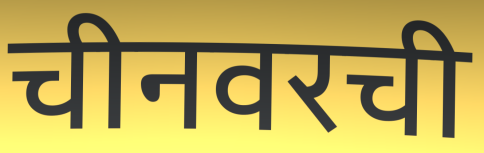
चीनवरची